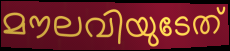
മൗലവിയുടേത്